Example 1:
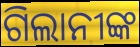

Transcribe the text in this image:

ଗିଲାନୀଙ୍କ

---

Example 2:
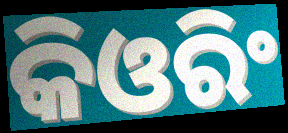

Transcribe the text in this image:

କିଓରିଂ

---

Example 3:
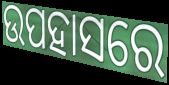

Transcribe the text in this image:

ଉପହାସରେ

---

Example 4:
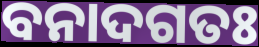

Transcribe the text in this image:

ବନାଦଗତଃ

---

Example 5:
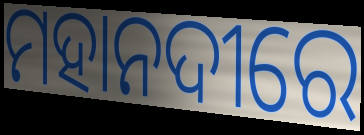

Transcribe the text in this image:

ମହାନଦୀରେ